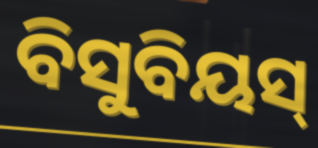
ବିସୁବିୟସ୍